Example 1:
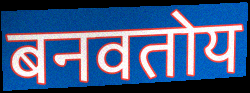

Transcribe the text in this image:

बनवतोय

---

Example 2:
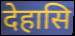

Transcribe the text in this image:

देहासि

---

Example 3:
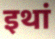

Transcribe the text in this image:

इथां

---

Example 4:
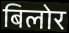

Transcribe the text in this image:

बिलोर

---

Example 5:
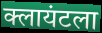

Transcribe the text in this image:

क्लायंटला